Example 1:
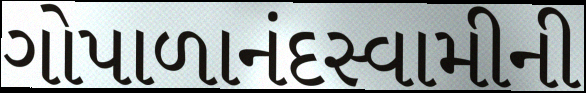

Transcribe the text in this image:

ગોપાળાનંદસ્વામીની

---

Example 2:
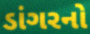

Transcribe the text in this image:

ડાંગરનો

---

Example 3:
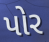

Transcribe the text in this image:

પોર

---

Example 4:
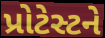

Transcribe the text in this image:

પ્રોટેસ્ટને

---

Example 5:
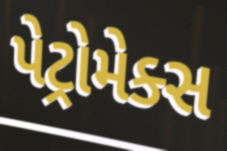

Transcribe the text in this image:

પેટ્રોમેક્સ